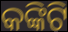
କଙ୍କିଟି